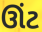
ઊંટ